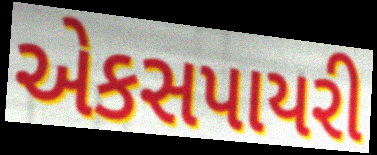
એકસપાયરી